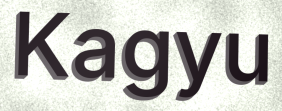
Kagyu